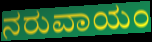
ನರುವಾಯಂ